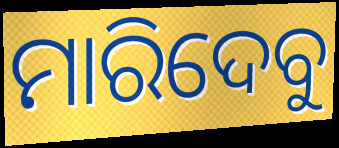
ମାରିଦେବୁ